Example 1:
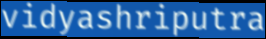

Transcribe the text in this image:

vidyashriputra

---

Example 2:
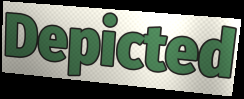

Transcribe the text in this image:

Depicted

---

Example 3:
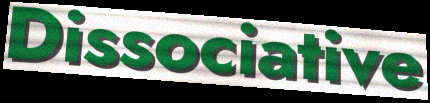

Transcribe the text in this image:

Dissociative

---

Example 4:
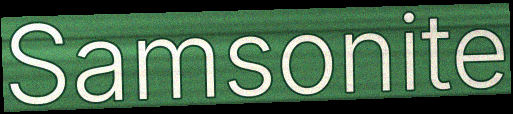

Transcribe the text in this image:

Samsonite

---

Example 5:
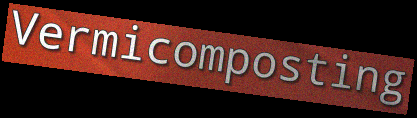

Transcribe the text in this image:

Vermicomposting